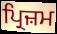
ਪ੍ਰਿਜ਼ਮ